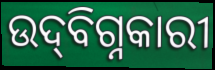
ଉଦ୍‌ବିଗ୍ନକାରୀ